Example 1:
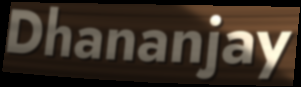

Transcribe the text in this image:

Dhananjay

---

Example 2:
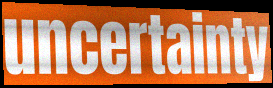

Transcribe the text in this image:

uncertainty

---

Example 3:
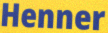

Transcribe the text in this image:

Henner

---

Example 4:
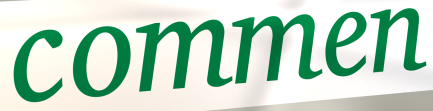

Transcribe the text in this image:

commen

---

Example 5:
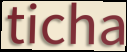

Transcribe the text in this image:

ticha